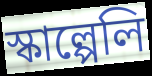
স্কাল্পেলি